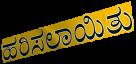
ಹರಿಸಲಾಯಿತು